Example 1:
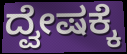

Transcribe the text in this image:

ದ್ವೇಷಕ್ಕೆ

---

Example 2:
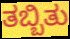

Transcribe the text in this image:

ತಬ್ಬಿತು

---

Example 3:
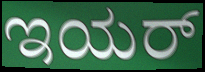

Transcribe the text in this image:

ಇಯರ್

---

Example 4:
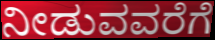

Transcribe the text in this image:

ನೀಡುವವರೆಗೆ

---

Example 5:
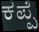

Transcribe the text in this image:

ಕಪ್ಪೆ